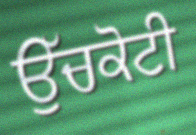
ਉੱਚਕੋਟੀ